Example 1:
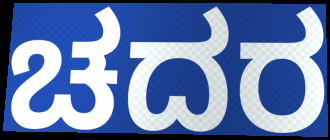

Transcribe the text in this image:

ಚದರ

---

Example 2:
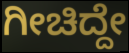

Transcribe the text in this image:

ಗೀಚಿದ್ದೇ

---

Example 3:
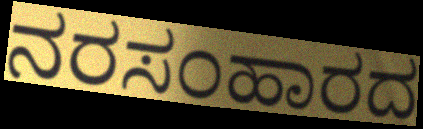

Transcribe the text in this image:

ನರಸಂಹಾರದ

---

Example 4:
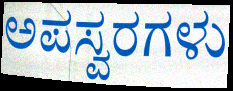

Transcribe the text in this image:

ಅಪಸ್ವರಗಳು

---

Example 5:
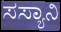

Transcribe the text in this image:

ಸಸ್ಯಾನಿ